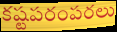
కష్టపరంపరలు